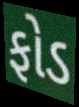
ફોડ